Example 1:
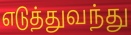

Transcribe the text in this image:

எடுத்துவந்து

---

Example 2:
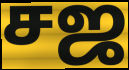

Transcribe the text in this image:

சஜ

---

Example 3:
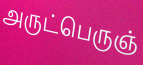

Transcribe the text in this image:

அருட்பெருஞ்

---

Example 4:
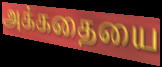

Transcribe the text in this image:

அக்கதையை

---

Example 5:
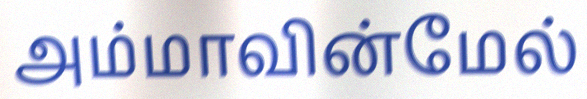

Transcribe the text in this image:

அம்மாவின்மேல்